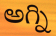
అగ్ని